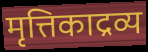
मृत्तिकाद्रव्य